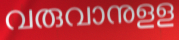
വരുവാനുളള